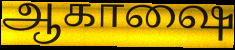
ஆகாஷை